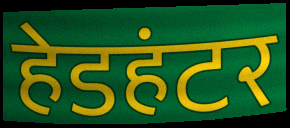
हेडहंटर